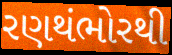
રણથંભોરથી